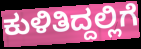
ಕುಳಿತಿದ್ದಲ್ಲಿಗೆ